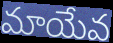
మాయేవ